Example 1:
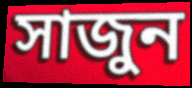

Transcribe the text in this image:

সাজুন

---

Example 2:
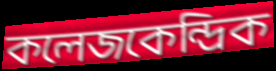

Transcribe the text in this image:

কলেজকেন্দ্রিক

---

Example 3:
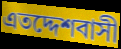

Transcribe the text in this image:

এতদ্দেশবাসী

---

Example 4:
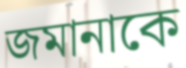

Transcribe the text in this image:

জমানাকে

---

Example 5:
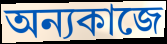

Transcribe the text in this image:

অন্যকাজে